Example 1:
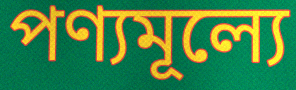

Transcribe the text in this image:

পণ্যমূল্যে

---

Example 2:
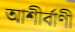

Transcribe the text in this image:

আশীর্বাণী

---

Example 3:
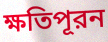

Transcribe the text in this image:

ক্ষতিপূরন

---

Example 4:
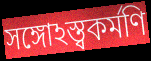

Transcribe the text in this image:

সঙ্গোঽস্ত্বকর্মণি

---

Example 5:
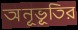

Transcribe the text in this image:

অনূভূতির